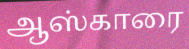
ஆஸ்காரை